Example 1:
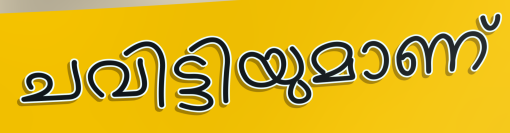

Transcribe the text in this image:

ചവിട്ടിയുമാണ്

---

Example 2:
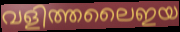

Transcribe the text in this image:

വളിത്തലൈഇയ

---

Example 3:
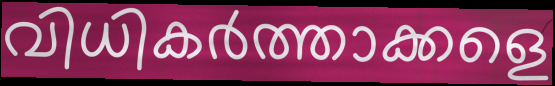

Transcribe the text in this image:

വിധികർത്താക്കളെ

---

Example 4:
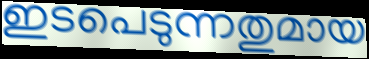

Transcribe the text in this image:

ഇടപെടുന്നതുമായ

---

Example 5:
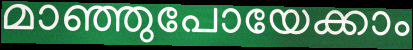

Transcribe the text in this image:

മാഞ്ഞുപോയേക്കാം